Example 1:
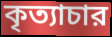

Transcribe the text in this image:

কৃত্যাচার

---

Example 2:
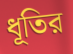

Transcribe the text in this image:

ধূতির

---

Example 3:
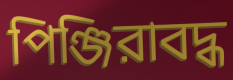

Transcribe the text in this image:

পিঞ্জিরাবদ্ধ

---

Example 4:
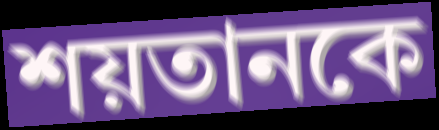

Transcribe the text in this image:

শয়তানকে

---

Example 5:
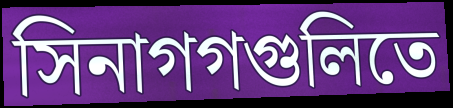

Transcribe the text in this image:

সিনাগগগুলিতে